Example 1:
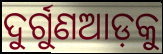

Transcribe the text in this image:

ଦୁର୍ଗୁଣଆଡ଼କୁ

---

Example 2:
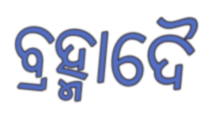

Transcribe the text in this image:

ବ୍ରହ୍ମାଦୈ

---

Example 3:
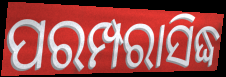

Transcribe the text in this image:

ପରମ୍ପରାସିଦ୍ଧ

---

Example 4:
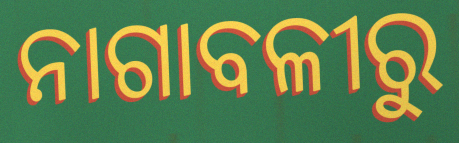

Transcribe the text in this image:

ନାଗାବଳୀରୁ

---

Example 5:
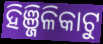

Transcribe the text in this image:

ହିଞ୍ଜିଳିକାଟୁ